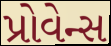
પ્રોવેન્સ